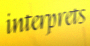
interprets